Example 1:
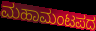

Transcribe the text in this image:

ಮಹಾಮಂಟಪದ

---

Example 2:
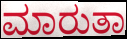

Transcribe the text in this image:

ಮಾರುತಾ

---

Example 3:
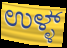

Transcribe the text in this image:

ಉಳ್ಳ್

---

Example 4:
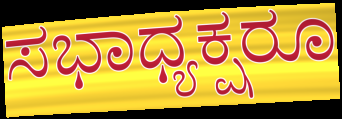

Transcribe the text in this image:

ಸಭಾಧ್ಯಕ್ಷರೂ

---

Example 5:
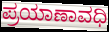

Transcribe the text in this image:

ಪ್ರಯಾಣಾವಧಿ